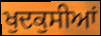
ਖੁਦਕੁਸੀਆਂ